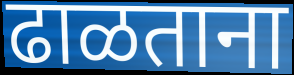
ढाळताना